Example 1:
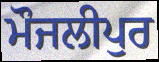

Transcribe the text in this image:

ਮੌਜਲੀਪੁਰ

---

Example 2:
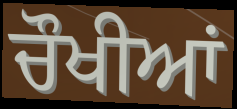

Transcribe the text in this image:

ਚੌਖੀਆਂ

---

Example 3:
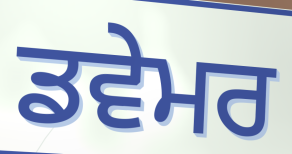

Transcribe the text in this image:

ਡਵੇਮਰ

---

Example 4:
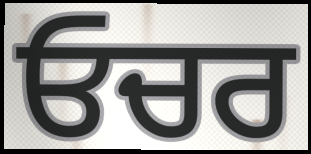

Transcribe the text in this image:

ਓਚਰ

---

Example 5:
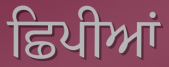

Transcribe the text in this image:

ਛਿਪੀਆਂ